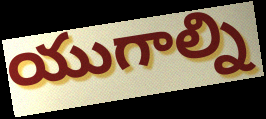
యుగాల్ని